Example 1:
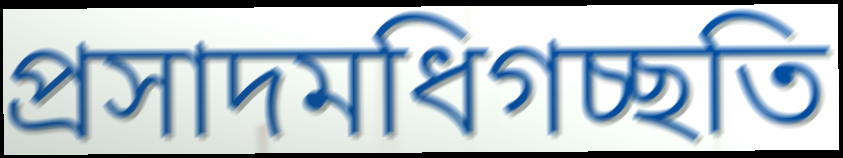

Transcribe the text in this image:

প্রসাদমধিগচ্ছতি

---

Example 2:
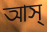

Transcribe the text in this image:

আস্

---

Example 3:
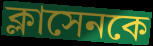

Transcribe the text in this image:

ক্লাসেনকে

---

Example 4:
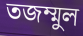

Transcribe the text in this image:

তজম্মুল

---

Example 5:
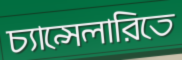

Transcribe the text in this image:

চ্যান্সেলারিতে